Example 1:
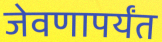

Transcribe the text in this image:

जेवणापर्यंत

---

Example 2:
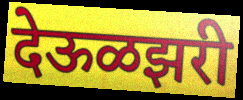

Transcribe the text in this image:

देऊळझरी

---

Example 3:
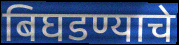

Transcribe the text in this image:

बिघडण्याचे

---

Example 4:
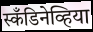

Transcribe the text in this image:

स्कँडिनेव्हिया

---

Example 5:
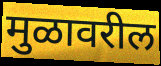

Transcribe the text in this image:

मुळावरील